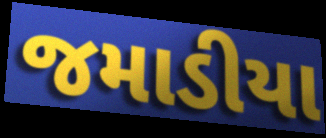
જમાડીયા